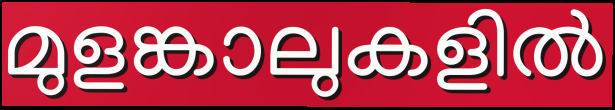
മുളങ്കാലുകളിൽ